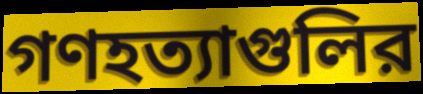
গণহত্যাগুলির